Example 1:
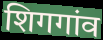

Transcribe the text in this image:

शिगगांव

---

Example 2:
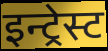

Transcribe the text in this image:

इन्ट्रेस्ट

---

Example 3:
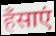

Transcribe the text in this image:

हँसाएं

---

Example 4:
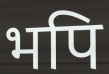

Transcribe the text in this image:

भपि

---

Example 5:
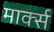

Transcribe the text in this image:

मार्क्‍स